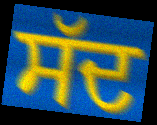
ਸੱਦ